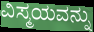
ವಿಸ್ಮಯವನ್ನು